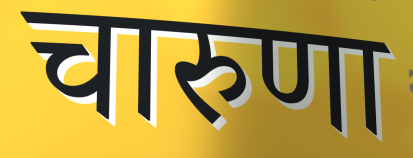
चारुणा